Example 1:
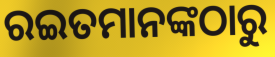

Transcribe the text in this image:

ରଇତମାନଙ୍କଠାରୁ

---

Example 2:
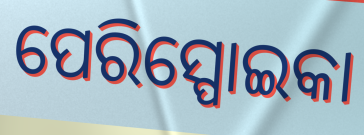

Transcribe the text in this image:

ପେରିସ୍ପୋଇକା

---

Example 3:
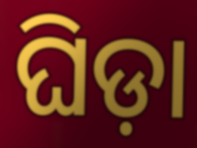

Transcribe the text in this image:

ଘିଡ଼ା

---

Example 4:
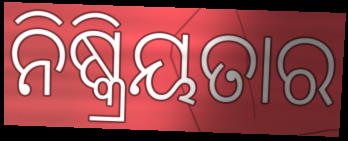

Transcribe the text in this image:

ନିଷ୍କ୍ରିୟତାର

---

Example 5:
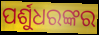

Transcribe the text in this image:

ପର୍ଶୁଧରଙ୍କର